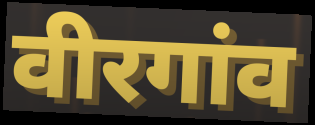
वीरगांव